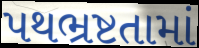
પથભ્રષ્ટતામાં